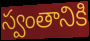
స్వంతానికి